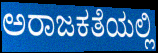
ಅರಾಜಕತೆಯಲ್ಲಿ